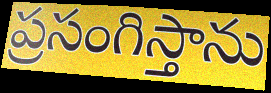
ప్రసంగిస్తాను